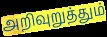
அறிவுறுத்தும்